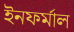
ইনফর্মাল